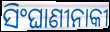
ସିଂଘାଣୀନାକୀ